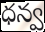
ధన్వ